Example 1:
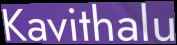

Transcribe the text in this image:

Kavithalu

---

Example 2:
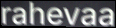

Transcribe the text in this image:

rahevaa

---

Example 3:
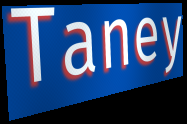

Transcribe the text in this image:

Taney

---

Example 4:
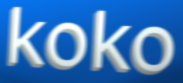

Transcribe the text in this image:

koko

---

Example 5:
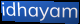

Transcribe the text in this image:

idhayam